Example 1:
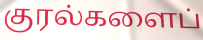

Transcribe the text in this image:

குரல்களைப்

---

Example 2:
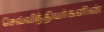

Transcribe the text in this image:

செவ்விந்தியர்களின்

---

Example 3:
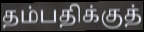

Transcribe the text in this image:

தம்பதிக்குத்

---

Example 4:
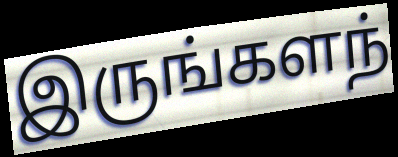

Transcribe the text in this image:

இருங்களந்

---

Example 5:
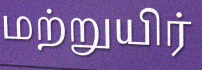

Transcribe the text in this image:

மற்றுயிர்